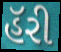
હૅરી